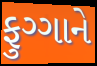
ફુગ્ગાને